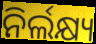
ନିର୍ଲକ୍ଷ୍ୟ